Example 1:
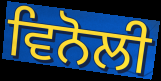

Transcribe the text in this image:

ਵਿਨੋਲੀ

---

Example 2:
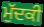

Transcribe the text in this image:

ਮੁੱਦਕੀ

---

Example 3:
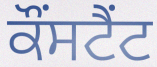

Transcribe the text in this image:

ਕੌਂਸਟੈਂਟ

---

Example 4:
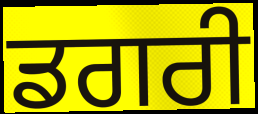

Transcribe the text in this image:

ਡਗਰੀ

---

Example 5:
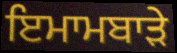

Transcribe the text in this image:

ਇਮਾਮਬਾੜੇ